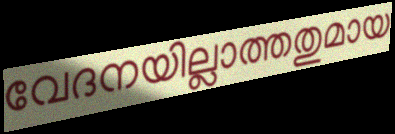
വേദനയില്ലാത്തതുമായ